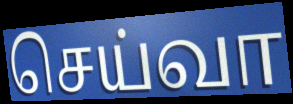
செய்வா